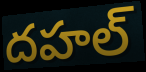
దహల్